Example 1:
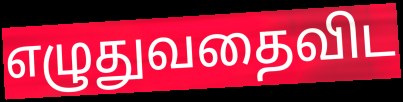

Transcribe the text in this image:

எழுதுவதைவிட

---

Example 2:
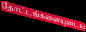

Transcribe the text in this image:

தோட்டங்களையுடைய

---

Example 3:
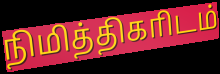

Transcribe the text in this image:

நிமித்திகரிடம்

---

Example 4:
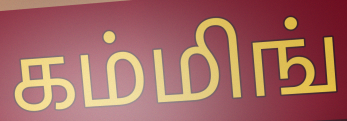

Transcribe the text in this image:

கம்மிங்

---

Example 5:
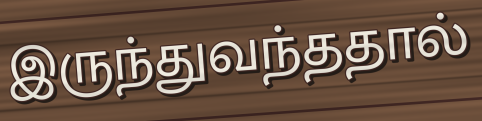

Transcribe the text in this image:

இருந்துவந்ததால்